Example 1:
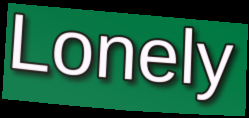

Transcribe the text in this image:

Lonely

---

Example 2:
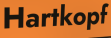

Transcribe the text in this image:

Hartkopf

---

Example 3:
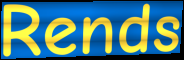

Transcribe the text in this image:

Rends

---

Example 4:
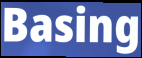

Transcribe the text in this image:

Basing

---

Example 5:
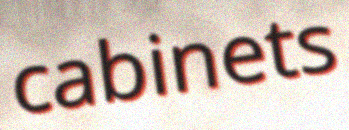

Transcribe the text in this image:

cabinets